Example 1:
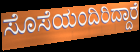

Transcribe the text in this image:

ಸೊಸೆಯಂದಿರಿದ್ದಾರೆ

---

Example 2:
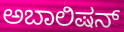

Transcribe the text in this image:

ಅಬಾಲಿಷನ್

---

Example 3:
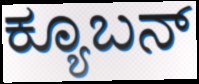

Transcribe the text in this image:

ಕ್ಯೂಬನ್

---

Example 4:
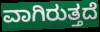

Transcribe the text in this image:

ವಾಗಿರುತ್ತದೆ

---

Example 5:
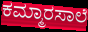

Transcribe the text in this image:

ಕಮ್ಮಾರಸಾಲೆ